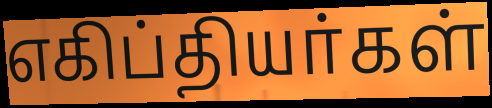
எகிப்தியர்கள்